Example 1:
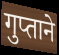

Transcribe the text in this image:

गुप्ताने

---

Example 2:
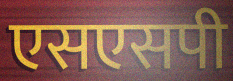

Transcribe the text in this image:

एसएसपी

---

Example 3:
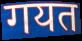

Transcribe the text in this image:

गयत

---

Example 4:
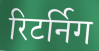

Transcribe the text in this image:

रिटर्निग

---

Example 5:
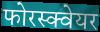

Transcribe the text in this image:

फोरस्क्वेयर